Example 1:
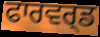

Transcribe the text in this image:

ਫਾਰਵਰ੍ਡ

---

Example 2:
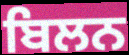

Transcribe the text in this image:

ਬਿਲਨ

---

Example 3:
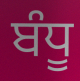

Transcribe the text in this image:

ਬੰਧੂ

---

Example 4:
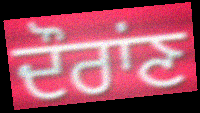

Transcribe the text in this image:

ਦੌਰਾਂਣ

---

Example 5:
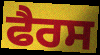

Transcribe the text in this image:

ਫੈਰਸ